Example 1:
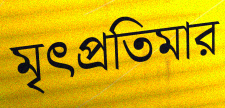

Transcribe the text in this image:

মৃৎপ্রতিমার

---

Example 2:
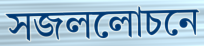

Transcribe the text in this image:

সজললোচনে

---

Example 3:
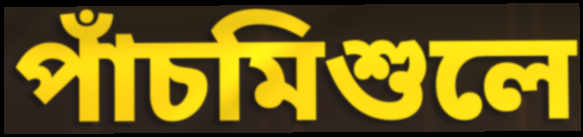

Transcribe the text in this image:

পাঁচমিশুলে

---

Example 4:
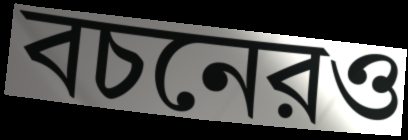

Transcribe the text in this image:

বচনেরও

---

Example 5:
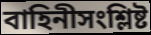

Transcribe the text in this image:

বাহিনীসংশ্লিষ্ট